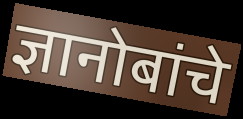
ज्ञानोबांचे